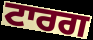
ਟਾਰਗ